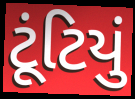
ટૂંટિયું